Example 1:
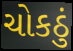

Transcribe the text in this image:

ચોકઠું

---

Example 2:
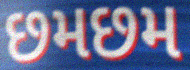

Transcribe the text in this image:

છમછમ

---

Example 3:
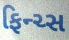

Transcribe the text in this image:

ફિન્ચ્સ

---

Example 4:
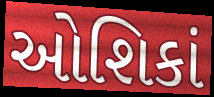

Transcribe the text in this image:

ઓશિકાં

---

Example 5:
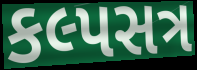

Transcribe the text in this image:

કલ્પસત્ર